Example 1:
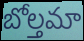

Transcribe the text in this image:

బోల్తమా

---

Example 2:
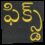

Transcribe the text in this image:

ఫిక్స్డ్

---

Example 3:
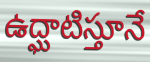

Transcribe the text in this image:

ఉద్ఘాటిస్తూనే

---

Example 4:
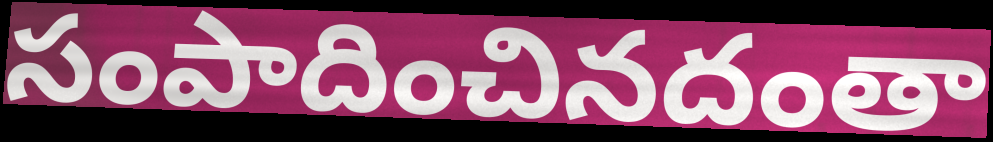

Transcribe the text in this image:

సంపాదించినదంతా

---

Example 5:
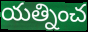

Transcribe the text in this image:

యత్నించ